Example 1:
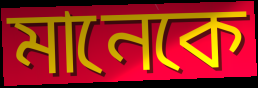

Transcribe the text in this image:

মানেকে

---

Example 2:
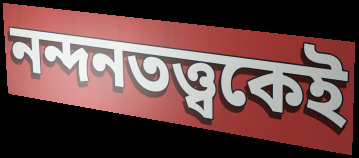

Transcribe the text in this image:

নন্দনতত্ত্বকেই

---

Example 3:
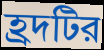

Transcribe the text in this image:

হ্রদটির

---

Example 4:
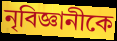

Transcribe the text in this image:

নৃবিজ্ঞানীকে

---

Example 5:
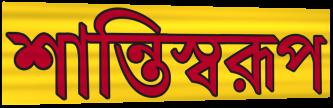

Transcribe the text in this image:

শান্তিস্বরূপ